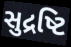
સુદ્રષ્ટિ